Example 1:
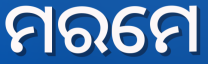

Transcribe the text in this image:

ମରମେ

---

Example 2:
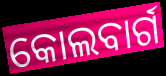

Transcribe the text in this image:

କୋଲବାର୍ଗ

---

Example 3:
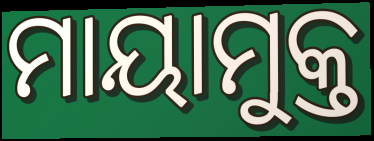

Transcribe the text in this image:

ମାୟାମୁକ୍ତ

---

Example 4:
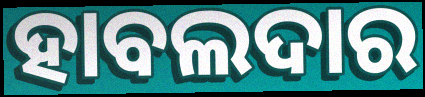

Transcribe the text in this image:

ହାବଲଦାର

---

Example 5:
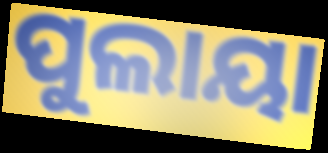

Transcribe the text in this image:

ପୁଲାୟା